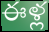
ఈళ్ల